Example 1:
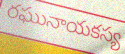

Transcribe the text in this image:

రఘునాయకస్య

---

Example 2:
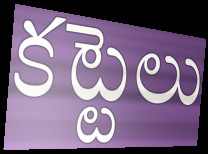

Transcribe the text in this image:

కట్టెలు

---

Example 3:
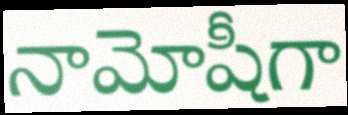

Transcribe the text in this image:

నామోషీగా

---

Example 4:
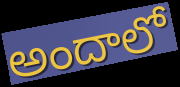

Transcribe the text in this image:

అందాలో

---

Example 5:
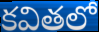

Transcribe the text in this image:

కవితలో